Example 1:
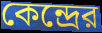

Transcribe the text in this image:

কেন্দ্রের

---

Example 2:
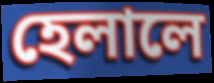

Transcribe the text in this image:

হেলালে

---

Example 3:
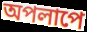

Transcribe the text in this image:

অপলাপে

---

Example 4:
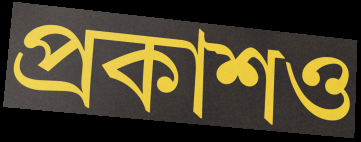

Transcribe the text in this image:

প্রকাশও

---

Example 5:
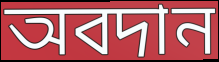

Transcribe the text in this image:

অবদান